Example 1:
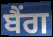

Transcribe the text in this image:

ਬੈਂਗ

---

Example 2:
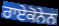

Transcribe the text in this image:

ਰਾਏਕੋਨੇਨ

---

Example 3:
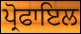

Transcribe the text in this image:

ਪ੍ਰੋਫਾਇਲ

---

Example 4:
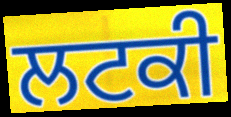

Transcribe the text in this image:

ਲਟਕੀ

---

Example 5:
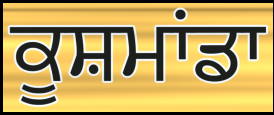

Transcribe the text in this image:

ਕੂਸ਼ਮਾਂਡਾ